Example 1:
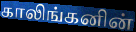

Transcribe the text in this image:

காலிங்கனின்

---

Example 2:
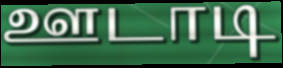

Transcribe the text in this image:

ஊடாடி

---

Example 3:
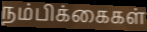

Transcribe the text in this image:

நம்பிக்கைகள்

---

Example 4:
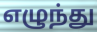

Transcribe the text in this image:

எழுந்து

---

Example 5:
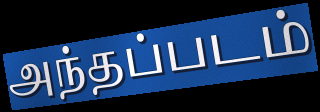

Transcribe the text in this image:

அந்தப்படம்